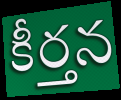
కీర్తన